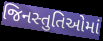
જિનસ્તુતિઓમાં